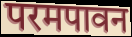
परमपावन